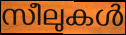
സീലുകൾ